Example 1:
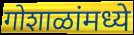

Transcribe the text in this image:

गोशाळांमध्ये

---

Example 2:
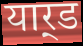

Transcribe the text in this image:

यार्ड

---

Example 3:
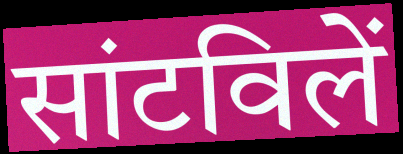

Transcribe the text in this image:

सांटविलें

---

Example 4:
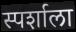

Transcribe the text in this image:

स्पर्शाला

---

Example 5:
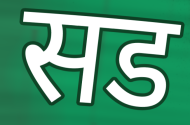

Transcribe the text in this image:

सड